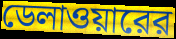
ডেলাওয়ারের